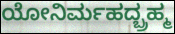
ಯೋನಿರ್ಮಹದ್ಬ್ರಹ್ಮ